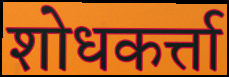
शोधकर्त्ता